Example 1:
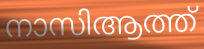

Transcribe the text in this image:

നാസിആത്ത്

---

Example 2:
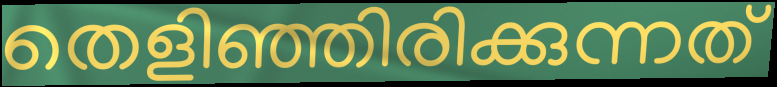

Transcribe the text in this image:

തെളിഞ്ഞിരിക്കുന്നത്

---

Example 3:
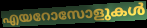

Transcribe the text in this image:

എയറോസോളുകൾ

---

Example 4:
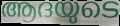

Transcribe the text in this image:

ആദയുടെ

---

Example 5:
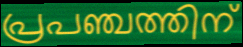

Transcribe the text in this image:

പ്രപഞ്ചത്തിന്